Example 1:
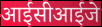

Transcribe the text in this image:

आईसीआईजे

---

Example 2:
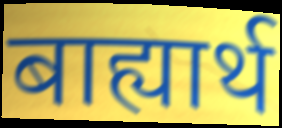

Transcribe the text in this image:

बाह्यार्थ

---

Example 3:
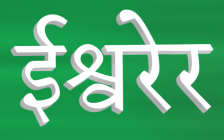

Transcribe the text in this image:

ईश्वरेर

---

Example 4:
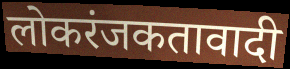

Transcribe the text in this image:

लोकरंजकतावादी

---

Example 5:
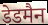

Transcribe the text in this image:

डेडमैन